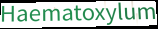
Haematoxylum